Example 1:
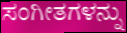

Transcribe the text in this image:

ಸಂಗೀತಗಳನ್ನು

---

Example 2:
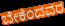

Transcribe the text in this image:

ಬೇಕೆಂದವರ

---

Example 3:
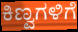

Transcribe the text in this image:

ಕಿಣ್ವಗಳಿಗೆ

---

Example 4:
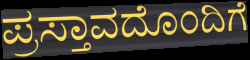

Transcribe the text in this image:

ಪ್ರಸ್ತಾವದೊಂದಿಗೆ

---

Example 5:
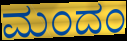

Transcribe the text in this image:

ಮಂದಂ